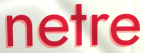
netre